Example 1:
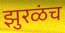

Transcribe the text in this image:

झुरळंच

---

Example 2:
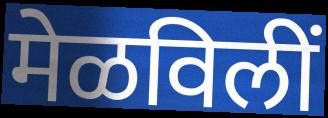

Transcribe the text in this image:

मेळविलीं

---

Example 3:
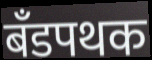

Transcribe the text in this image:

बँडपथक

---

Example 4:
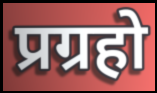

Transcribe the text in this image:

प्रग्रहो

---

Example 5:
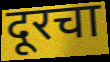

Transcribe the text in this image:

दूरचा